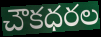
చౌకధరల